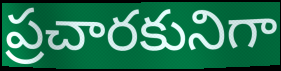
ప్రచారకునిగా